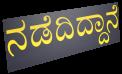
ನಡೆದಿದ್ದಾನೆ